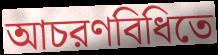
আচরণবিধিতে